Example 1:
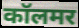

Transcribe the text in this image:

कॉलमर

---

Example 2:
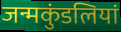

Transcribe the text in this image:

जन्मकुंडलियां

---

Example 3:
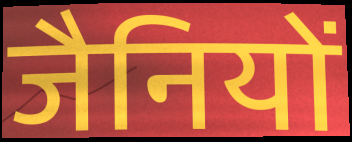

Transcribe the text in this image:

जैनियों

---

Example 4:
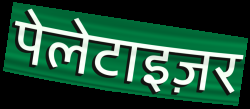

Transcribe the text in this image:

पेलेटाइज़र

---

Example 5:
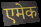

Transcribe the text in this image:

एमेक